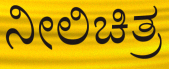
ನೀಲಿಚಿತ್ರ